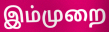
இம்முறை